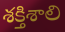
శక్తిశాలి